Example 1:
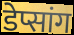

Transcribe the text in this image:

डेप्सांग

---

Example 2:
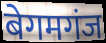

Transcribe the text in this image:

बेगमगंज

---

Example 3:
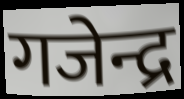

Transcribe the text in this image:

गजेन्‍द्र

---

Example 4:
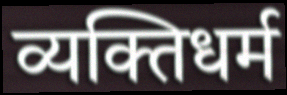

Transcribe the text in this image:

व्यक्तिधर्म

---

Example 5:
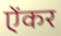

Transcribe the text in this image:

ऐंकर